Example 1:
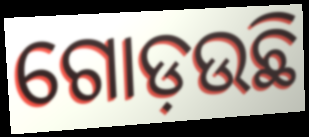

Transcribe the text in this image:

ଗୋଡ଼ଉଛି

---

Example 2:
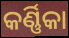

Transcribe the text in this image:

କର୍ଣ୍ଣିକା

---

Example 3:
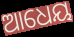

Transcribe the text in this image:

ଆଧେୟ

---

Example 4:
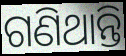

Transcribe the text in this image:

ଗଣିଥାନ୍ତି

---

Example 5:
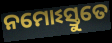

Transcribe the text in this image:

ନମୋଽସ୍ତୁତେ